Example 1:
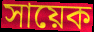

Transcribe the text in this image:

সায়েক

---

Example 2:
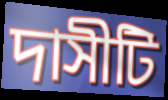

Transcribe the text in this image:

দাসীটি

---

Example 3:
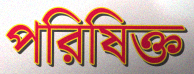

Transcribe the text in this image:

পরিষিক্ত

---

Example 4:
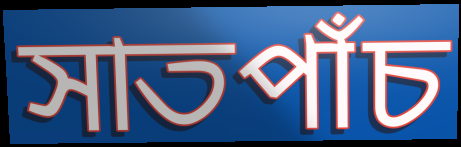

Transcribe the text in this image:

সাতপাঁচ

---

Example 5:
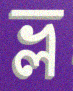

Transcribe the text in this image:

ভ্ল